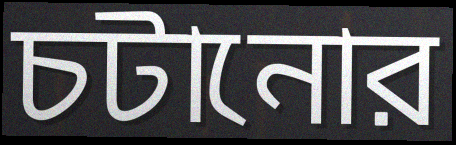
চটানোর